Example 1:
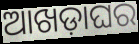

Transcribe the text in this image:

ଆଖଡ଼ାଘର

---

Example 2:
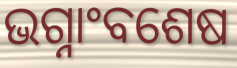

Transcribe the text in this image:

ଭଗ୍ନାଂବଶେଷ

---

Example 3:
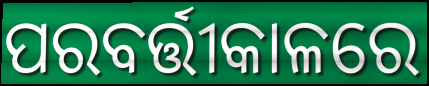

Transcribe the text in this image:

ପରବର୍ତ୍ତୀକାଳରେ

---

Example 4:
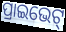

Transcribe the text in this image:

ପ୍ରାଇଭେଟ୍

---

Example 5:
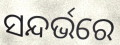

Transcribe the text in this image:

ସନ୍ଦର୍ଭରେ